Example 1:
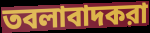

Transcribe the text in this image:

তবলাবাদকরা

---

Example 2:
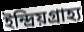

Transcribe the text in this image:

ইন্দ্রিয়গ্রাহ্য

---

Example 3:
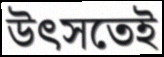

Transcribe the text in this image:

উৎসতেই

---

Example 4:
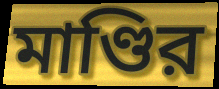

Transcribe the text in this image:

মাণ্ডির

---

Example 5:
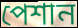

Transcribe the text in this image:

পেশান